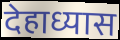
देहाध्यास